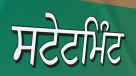
ਸਟੇਟਮਿੰਟ